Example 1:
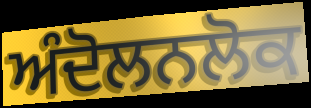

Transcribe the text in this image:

ਅੰਦੋਲਨਲੋਕ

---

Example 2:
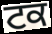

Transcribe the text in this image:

ਟਕ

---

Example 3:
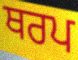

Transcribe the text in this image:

ਥਰਪ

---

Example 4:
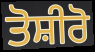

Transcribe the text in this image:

ਤੋਸ਼ੀਰੋ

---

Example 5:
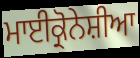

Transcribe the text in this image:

ਮਾਈਕ੍ਰੋਨੇਸ਼ੀਆ